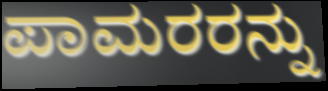
ಪಾಮರರನ್ನು